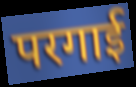
परगाई